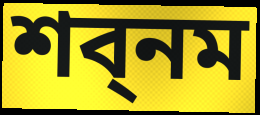
শব্নম